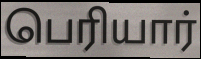
பெரியார்